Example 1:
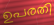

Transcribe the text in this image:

ഉപരതി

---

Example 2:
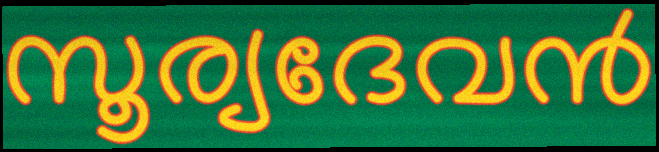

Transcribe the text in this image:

സൂര്യദേവൻ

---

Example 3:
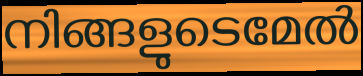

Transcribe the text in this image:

നിങ്ങളുടെമേൽ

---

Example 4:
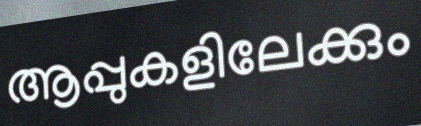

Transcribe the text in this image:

ആപ്പുകളിലേക്കും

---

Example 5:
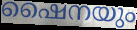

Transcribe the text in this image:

ഷൈനയും